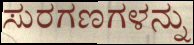
ಸುರಗಣಗಳನ್ನು